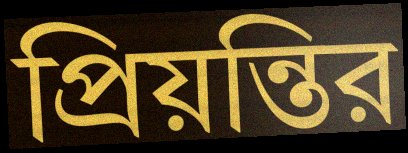
প্রিয়ন্তির